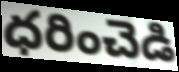
ధరించెడి